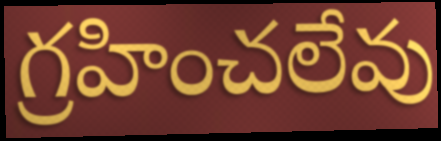
గ్రహించలేవు